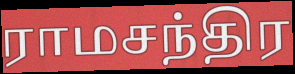
ராமசந்திர